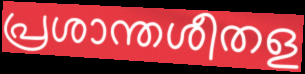
പ്രശാന്തശീതള